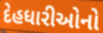
દેહધારીઓનો